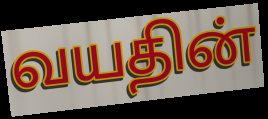
வயதின்